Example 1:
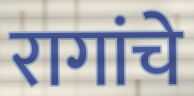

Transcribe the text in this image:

रागांचे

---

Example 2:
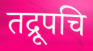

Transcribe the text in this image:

तद्रूपचि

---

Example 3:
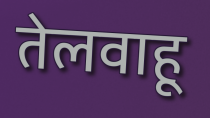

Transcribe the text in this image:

तेलवाहू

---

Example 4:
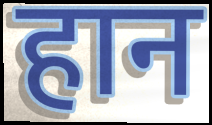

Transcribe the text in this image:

हान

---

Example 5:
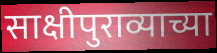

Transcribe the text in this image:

साक्षीपुराव्याच्या